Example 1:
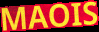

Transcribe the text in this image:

MAOIS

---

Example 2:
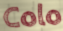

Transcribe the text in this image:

Colo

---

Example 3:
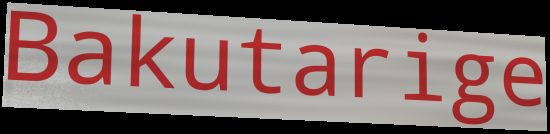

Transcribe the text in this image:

Bakutarige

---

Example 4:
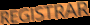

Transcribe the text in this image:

REGISTRAR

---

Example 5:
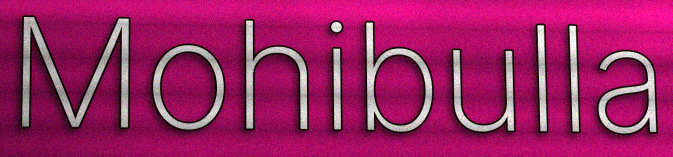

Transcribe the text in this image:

Mohibulla